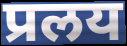
प्रलय